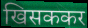
खिसककर